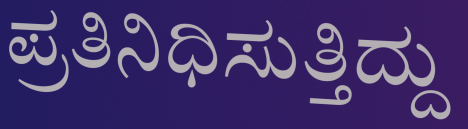
ಪ್ರತಿನಿಧಿಸುತ್ತಿದ್ದು